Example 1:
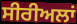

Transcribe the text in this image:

ਸੀਰੀਅਲਾਂ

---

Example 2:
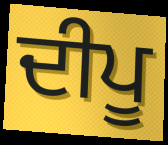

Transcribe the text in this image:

ਦੀਪੂ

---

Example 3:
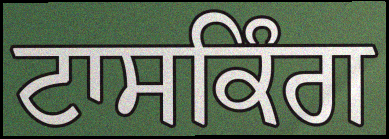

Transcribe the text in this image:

ਟਾਸਕਿੰਗ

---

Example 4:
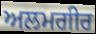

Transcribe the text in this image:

ਅਲਮਗੀਰ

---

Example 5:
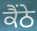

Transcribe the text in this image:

ਕੈਂਠੇ